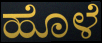
ಹೊಳೆ